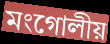
মংগোলীয়